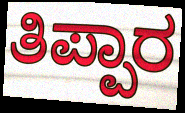
ತಿಪ್ಪಾರ